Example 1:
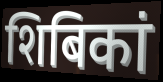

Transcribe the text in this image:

शिबिकां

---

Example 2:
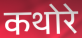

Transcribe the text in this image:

कथोरे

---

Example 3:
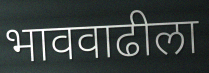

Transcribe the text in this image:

भाववाढीला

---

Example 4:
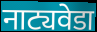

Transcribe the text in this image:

नाट्यवेडा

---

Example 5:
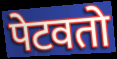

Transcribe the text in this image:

पेटवतो